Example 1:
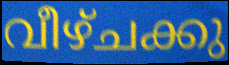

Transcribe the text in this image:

വീഴ്ചക്കു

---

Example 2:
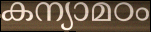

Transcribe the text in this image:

കന്യാമഠം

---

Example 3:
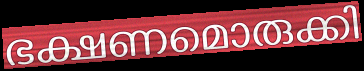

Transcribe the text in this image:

ഭക്ഷണമൊരുക്കി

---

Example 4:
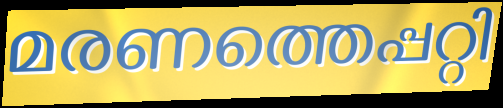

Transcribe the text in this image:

മരണത്തെപ്പറ്റി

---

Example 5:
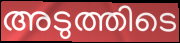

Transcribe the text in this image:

അടുത്തിടെ